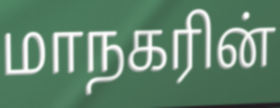
மாநகரின்